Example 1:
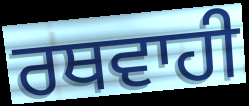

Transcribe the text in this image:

ਰਥਵਾਹੀ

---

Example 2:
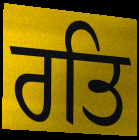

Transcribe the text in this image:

ਰਤਿ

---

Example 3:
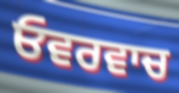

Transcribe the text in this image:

ਓਵਰਵਾਚ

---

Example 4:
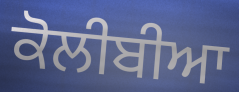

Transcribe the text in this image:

ਕੋਲੀਬੀਆ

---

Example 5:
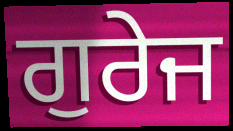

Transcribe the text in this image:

ਗੁਰੇਜ